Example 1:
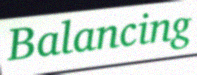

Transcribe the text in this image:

Balancing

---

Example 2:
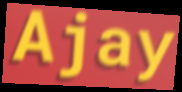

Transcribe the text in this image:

Ajay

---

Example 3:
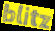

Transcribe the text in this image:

blitz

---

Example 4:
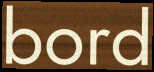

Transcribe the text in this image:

bord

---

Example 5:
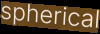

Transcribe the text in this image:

spherical